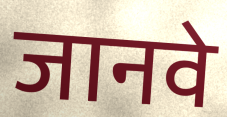
जानवे